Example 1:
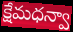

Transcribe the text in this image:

క్షేమధన్వా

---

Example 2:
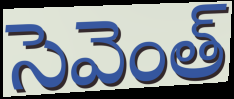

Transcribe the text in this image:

సెవెంత్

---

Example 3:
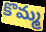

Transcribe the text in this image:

కొమ్మ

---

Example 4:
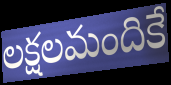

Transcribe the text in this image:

లక్షలమందికే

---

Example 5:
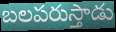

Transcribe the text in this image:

బలపరుస్తాడు